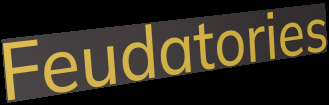
Feudatories